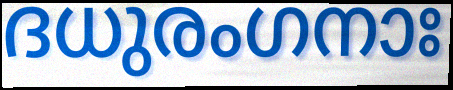
ദധുരംഗനാഃ